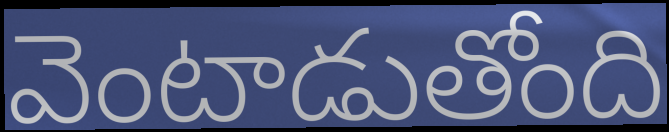
వెంటాడుతోంది